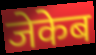
जेकेब